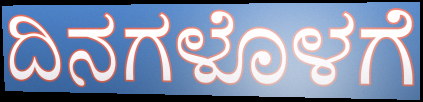
ದಿನಗಳೊಳಗೆ